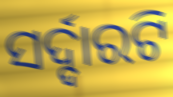
ସର୍ଦ୍ଦାରଟି